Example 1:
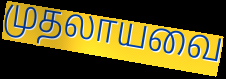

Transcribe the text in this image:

முதலாயவை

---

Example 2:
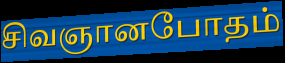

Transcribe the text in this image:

சிவஞானபோதம்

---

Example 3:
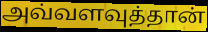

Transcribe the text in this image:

அவ்வளவுத்தான்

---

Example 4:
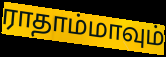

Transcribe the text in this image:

ராதாம்மாவும்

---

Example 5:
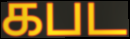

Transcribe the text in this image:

கபட